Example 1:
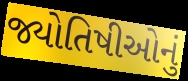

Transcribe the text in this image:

જ્યોતિષીઓનું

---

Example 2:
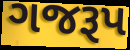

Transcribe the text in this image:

ગજરૂપ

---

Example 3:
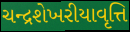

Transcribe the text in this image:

ચન્દ્રશેખરીયાવૃત્તિ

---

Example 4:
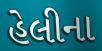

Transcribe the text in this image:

હેલીના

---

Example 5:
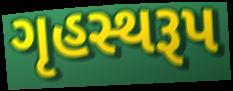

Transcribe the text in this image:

ગૃહસ્થરૂપ